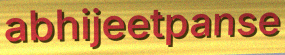
abhijeetpanse